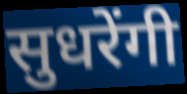
सुधरेंगी